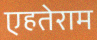
एहतेराम